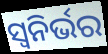
ସ୍ୱନିର୍ଭର